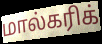
மால்கரிக்